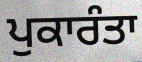
ਪੁਕਾਰੰਤਾ